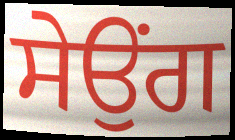
ਸੇਉਂਗ